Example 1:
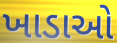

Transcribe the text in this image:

ખાડાઓ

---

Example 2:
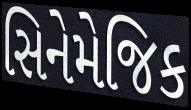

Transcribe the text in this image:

સિનેમેજિક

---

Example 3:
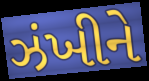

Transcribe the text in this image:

ઝંખીને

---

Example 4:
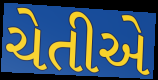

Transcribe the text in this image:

ચેતીએ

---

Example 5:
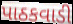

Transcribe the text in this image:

પાઠકવાડી